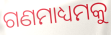
ଗଣମାଧ୍ୟମକୁ